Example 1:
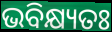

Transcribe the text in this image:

ଭବିକ୍ଷ୍ୟତଃ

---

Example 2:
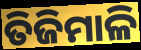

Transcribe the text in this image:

ତିଜିମାଳି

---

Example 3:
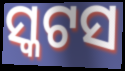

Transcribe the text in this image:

ସ୍କଟସ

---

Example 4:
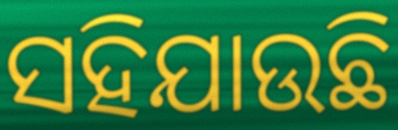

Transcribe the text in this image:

ସହିଯାଉଛି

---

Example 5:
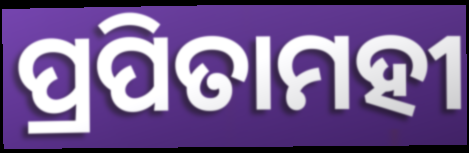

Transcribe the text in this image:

ପ୍ରପିତାମହୀ